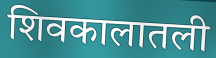
शिवकालातली